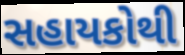
સહાયકોથી